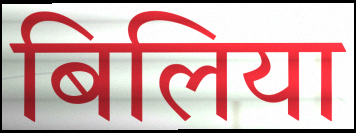
बिलिया